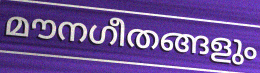
മൗനഗീതങ്ങളും